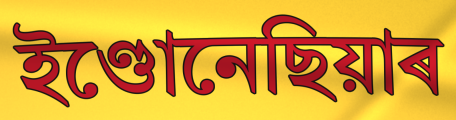
ইণ্ডোনেছিয়াৰ